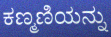
ಕಣ್ಮಣಿಯನ್ನು